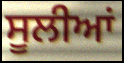
ਸੂਲੀਆਂ